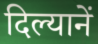
दिल्यानें